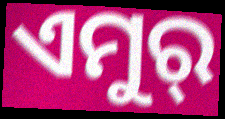
ଏମୁର୍